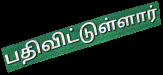
பதிவிட்டுள்ளார்